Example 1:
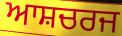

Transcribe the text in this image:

ਆਸ਼ਚਰਜ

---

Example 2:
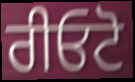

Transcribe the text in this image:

ਰੀਓਟੋ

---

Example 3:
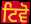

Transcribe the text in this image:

ਟਿਵੋ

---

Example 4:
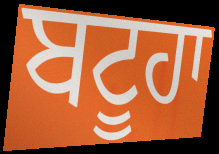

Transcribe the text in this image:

ਬਟੂਹਾ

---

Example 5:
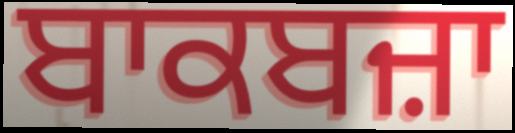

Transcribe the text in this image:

ਬਾਕਬਜ਼ਾ